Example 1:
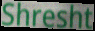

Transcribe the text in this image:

Shresht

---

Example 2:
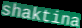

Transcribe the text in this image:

shaktina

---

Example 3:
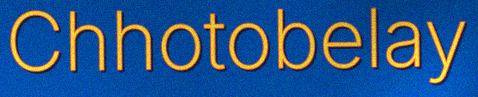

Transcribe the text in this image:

Chhotobelay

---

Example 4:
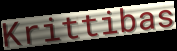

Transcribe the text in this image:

Krittibas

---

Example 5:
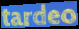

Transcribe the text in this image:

tardeo